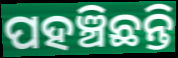
ପହଞ୍ଚିଛନ୍ତି